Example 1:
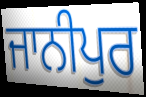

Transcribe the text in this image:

ਜਾਨੀਪੁਰ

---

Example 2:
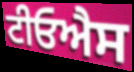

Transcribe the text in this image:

ਟੀਓਐਸ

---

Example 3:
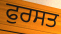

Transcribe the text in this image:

ਫੁਰਸਤ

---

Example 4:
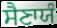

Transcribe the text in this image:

ਸੈਣਾਯੰ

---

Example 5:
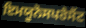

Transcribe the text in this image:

ਇਮਯੂਨੋਸਪਰੈਸੈਂਟ